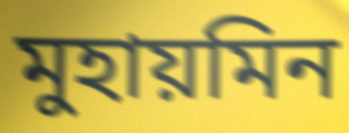
মুহায়মিন